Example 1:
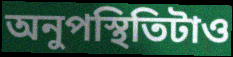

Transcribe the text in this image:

অনুপস্থিতিটাও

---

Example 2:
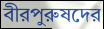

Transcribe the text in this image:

বীরপুরুষদের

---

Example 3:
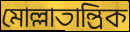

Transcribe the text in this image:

মোল্লাতান্ত্রিক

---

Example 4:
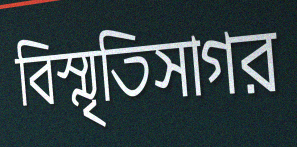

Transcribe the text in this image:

বিস্মৃতিসাগর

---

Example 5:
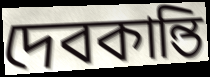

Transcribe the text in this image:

দেবকান্তি